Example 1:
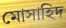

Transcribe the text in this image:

মোসাহিদ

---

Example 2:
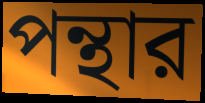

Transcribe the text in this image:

পন্থার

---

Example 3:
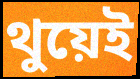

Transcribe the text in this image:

থুয়েই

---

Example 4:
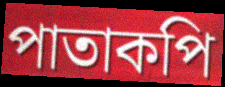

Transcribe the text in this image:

পাতাকপি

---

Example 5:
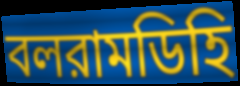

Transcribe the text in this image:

বলরামডিহি